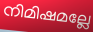
നിമിഷമല്ലേ